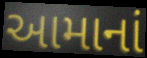
આમાનાં